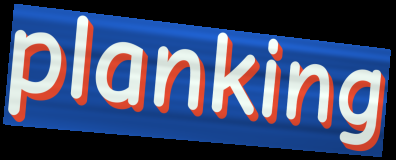
planking